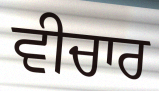
ਵੀਚਾਰ